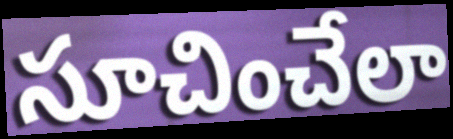
సూచించేలా